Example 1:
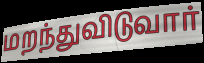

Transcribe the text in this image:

மறந்துவிடுவார்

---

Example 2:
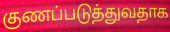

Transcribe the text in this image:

குணப்படுத்துவதாக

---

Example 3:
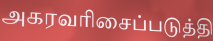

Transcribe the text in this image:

அகரவரிசைப்படுத்தி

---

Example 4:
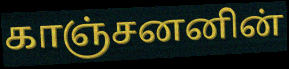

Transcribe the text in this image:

காஞ்சனனின்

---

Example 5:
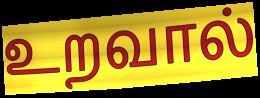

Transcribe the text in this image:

உறவால்